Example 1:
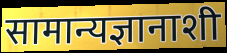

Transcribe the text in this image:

सामान्यज्ञानाशी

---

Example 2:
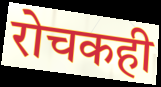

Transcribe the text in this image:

रोचकही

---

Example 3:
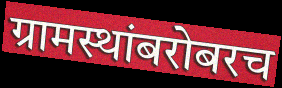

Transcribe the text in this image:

ग्रामस्थांबरोबरच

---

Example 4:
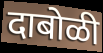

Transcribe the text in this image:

दाबोळी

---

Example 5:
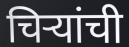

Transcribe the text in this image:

चिऱ्यांची